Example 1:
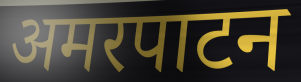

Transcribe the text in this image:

अमरपाटन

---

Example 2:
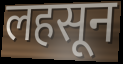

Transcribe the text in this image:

लहसून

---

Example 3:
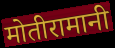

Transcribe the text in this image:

मोतीरामानी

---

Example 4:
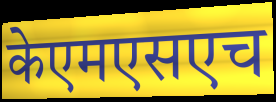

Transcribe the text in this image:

केएमएसएच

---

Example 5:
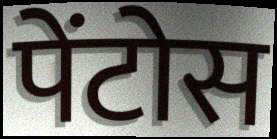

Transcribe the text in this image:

पेंटोस